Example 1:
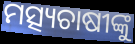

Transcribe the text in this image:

ମତ୍ସ୍ୟଚାଷୀଙ୍କୁ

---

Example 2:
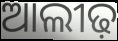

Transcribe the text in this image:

ଆଲୀଢ଼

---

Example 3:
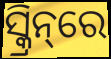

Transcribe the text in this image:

ସ୍କ୍ରିନ୍‌ରେ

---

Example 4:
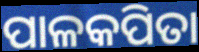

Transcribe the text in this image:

ପାଳକପିତା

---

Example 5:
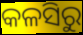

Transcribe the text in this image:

କଳସିରୁ